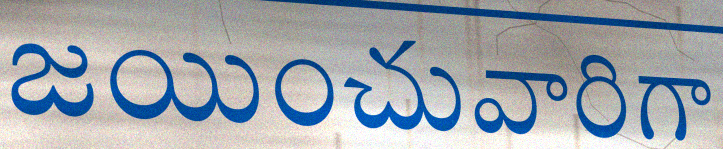
జయించువారిగా